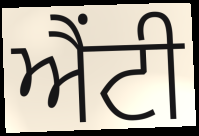
ਐਂਟੀ